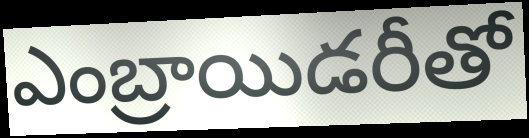
ఎంబ్రాయిడరీతో